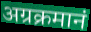
अग्रक्रमानं